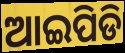
ଆଇପିଡି